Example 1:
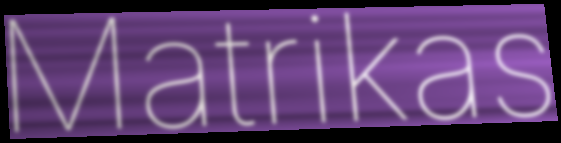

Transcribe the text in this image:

Matrikas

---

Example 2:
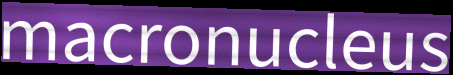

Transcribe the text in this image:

macronucleus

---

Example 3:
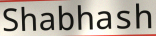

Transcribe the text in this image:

Shabhash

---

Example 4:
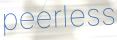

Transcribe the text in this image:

peerless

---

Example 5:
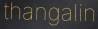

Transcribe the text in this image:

thangalin